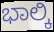
ಭಾಲ್ಕಿ